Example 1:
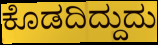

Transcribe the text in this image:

ಕೊಡದಿದ್ದುದು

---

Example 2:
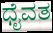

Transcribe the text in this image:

ಧೈವತ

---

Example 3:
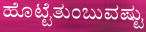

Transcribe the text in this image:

ಹೊಟ್ಟೆತುಂಬುವಷ್ಟು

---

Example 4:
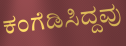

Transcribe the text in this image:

ಕಂಗೆಡಿಸಿದ್ದವು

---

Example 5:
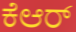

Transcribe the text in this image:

ಕೆಆರ್